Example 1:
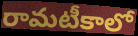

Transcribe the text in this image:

రామటీకాలో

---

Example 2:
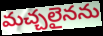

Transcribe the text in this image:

మచ్చలైనను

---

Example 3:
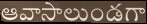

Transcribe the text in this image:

ఆవాసాలుండగా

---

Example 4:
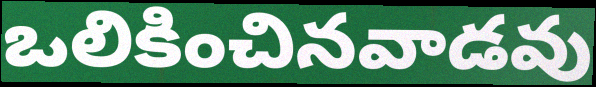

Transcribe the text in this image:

ఒలికించినవాడవు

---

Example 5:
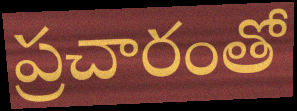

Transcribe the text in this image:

ప్రచారంతో